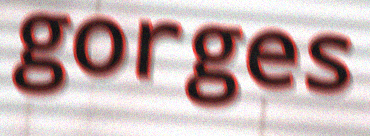
gorges